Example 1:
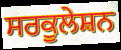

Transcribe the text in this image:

ਸਰਕੂਲੇਸ਼ਨ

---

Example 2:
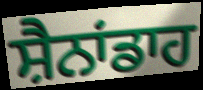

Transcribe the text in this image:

ਸ਼ੈਨਾਂਡਾਹ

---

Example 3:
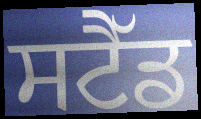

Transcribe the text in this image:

ਸਟੈੱਡ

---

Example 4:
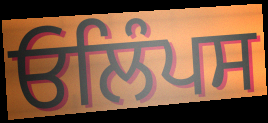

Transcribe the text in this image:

ਓਲਿੰਪਸ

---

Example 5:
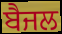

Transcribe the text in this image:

ਬੈਜਲ